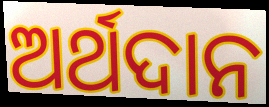
ଅର୍ଥଦାନ